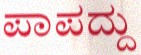
ಪಾಪದ್ದು